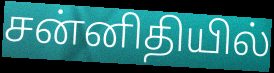
சன்னிதியில்